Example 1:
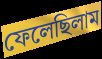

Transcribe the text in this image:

ফেলেছিলাম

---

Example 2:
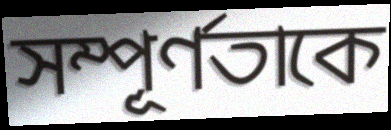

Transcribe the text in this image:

সম্পূর্ণতাকে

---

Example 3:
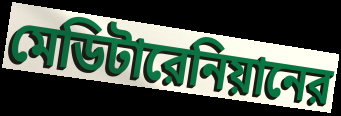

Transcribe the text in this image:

মেডিটারেনিয়ানের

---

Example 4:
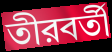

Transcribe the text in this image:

তীরবর্তী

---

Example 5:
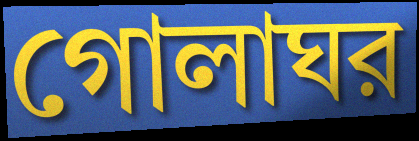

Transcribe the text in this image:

গোলাঘর